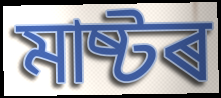
মাষ্টৰ